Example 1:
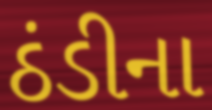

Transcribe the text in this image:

ઠંડીના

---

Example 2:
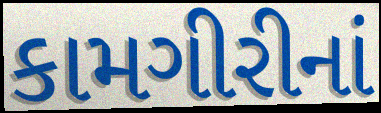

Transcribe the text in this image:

કામગીરીનાં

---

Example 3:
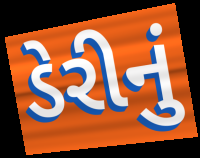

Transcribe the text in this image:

ડેરીનું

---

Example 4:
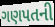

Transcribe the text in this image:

ગણપતની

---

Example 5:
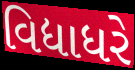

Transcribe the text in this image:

વિદ્યાધરે